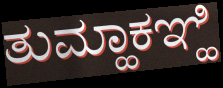
ತುಮ್ಹಾಕಞ್ಹಿ